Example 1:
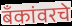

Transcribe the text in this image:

बँकांवरचे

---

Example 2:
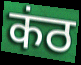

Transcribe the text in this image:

कंठ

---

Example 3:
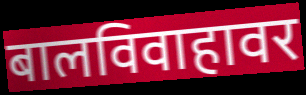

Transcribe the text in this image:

बालविवाहावर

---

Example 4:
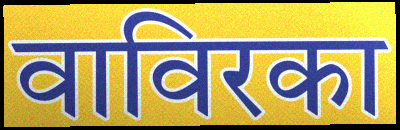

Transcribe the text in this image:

वाविरका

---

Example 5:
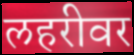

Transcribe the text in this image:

लहरीवर